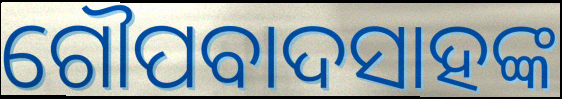
ଗୌପବାଦସାହଙ୍କ